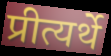
प्रीत्यर्थे